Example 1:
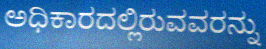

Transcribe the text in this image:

ಅಧಿಕಾರದಲ್ಲಿರುವವರನ್ನು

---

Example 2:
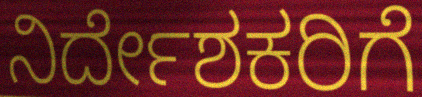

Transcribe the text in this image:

ನಿರ್ದೇಶಕರಿಗೆ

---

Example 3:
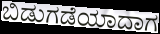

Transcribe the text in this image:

ಬಿಡುಗಡೆಯಾದಾಗ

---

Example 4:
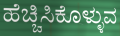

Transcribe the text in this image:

ಹೆಚ್ಚಿಸಿಕೊಳ್ಳುವ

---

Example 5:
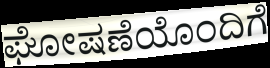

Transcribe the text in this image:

ಘೋಷಣೆಯೊಂದಿಗೆ